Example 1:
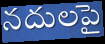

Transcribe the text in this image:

నదులపై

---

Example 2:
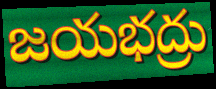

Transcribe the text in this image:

జయభద్రు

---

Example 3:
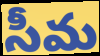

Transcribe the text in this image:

సీమ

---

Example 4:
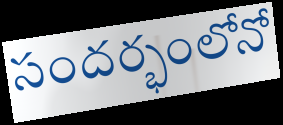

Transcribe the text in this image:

సందర్భంలోనో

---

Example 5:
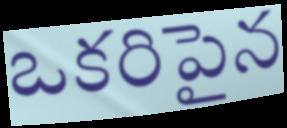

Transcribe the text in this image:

ఒకరిపైన